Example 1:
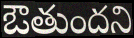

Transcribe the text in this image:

ఔతుందని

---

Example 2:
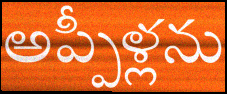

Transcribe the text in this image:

అప్పీళ్లను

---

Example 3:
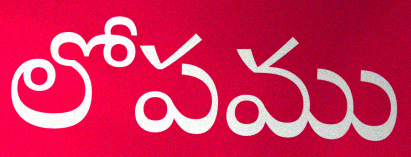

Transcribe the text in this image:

లోపము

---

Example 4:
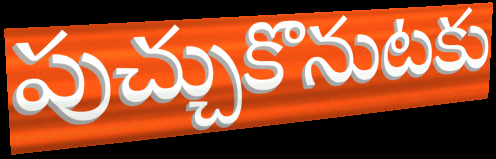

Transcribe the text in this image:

పుచ్చుకొనుటకు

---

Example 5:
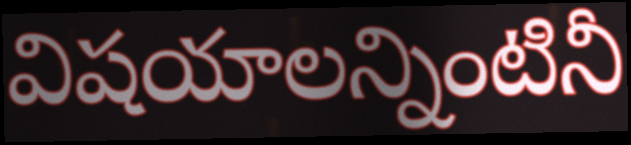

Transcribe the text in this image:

విషయాలన్నింటినీ